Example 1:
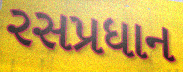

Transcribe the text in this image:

રસપ્રધાન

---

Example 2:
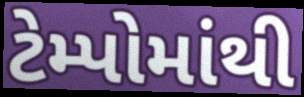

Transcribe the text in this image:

ટેમ્પોમાંથી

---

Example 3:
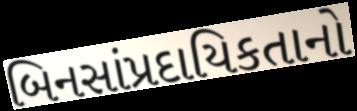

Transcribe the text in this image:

બિનસાંપ્રદાયિકતાનો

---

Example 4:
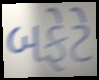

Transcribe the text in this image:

બફેટે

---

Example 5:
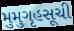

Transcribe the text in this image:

મુમુગૃહસૂચી